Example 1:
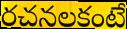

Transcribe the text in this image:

రచనలకంటే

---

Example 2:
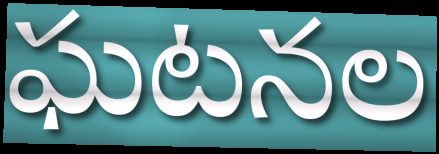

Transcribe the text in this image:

ఘటనల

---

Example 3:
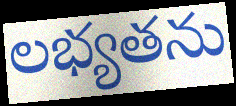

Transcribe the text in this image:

లభ్యతను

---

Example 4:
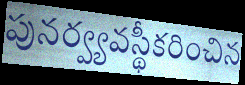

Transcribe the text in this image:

పునర్వ్యవస్థీకరించిన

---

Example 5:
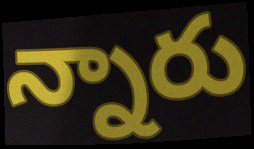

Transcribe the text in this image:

న్నారు